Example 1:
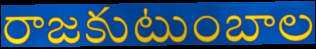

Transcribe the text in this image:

రాజకుటుంబాల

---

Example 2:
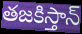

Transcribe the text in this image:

తజకిస్తాన్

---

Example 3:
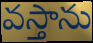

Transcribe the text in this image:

వస్తాను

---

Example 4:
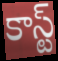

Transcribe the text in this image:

కాస్ట్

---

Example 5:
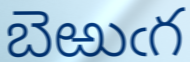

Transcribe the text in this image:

బెఱుఁగ